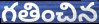
గతించిన